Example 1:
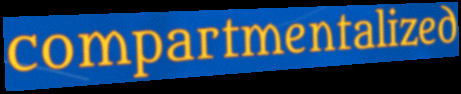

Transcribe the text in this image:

compartmentalized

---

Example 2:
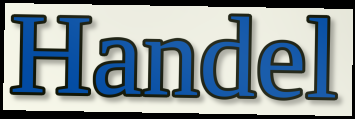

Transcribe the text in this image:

Handel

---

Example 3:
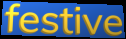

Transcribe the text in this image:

festive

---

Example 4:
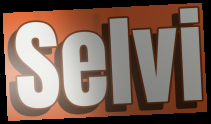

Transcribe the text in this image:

Selvi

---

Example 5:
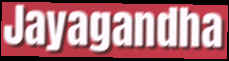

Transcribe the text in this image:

Jayagandha